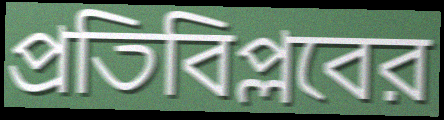
প্রতিবিপ্লবের